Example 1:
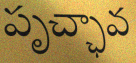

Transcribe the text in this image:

పృచ్ఛావ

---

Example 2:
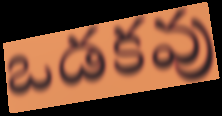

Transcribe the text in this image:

ఒడకవు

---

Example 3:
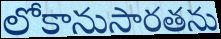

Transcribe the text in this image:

లోకానుసారతను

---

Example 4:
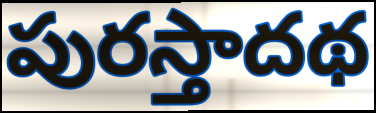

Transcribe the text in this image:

పురస్తాదథ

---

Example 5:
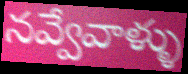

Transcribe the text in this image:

నవ్వేవాళ్ళు